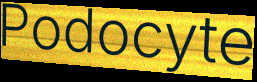
Podocyte